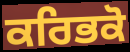
ਕਰਿਭਕੋ